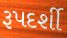
રૂપદર્શી